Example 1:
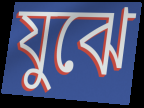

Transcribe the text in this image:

যুঝে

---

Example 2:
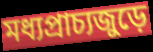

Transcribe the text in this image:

মধ্যপ্রাচ্যজুড়ে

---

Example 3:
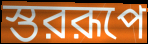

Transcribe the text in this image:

স্তররূপে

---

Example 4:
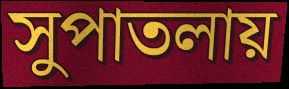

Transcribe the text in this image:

সুপাতলায়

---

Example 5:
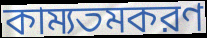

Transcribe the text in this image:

কাম্যতমকরণ